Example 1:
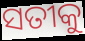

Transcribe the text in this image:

ସତୀକୁ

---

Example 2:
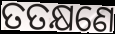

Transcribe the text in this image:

ତତକ୍ଷଣେ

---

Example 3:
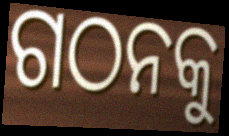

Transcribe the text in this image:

ଗଠନକୁ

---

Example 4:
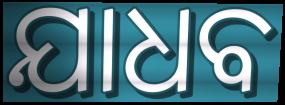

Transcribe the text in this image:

ଯାଧବ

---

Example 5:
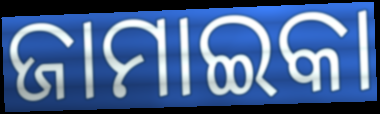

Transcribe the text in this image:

ଜାମାଇକା